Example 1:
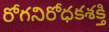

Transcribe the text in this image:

రోగనిరోధకశక్తి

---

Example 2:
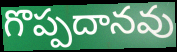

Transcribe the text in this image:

గొప్పదానవు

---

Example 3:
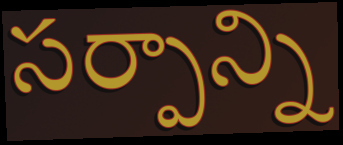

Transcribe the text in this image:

సర్పాన్ని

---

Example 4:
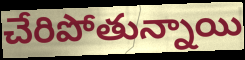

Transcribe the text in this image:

చేరిపోతున్నాయి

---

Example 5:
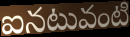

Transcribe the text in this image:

ఐనటువంటి